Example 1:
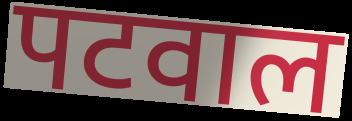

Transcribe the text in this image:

पटवाल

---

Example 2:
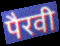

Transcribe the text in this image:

पैरवी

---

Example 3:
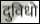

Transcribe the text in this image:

दुविधो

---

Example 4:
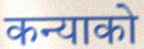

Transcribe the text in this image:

कन्याको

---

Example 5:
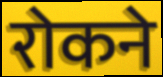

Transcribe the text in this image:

रोकने